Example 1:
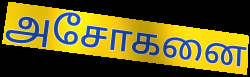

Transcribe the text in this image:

அசோகனை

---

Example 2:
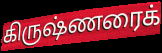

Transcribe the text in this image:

கிருஷ்ணரைக்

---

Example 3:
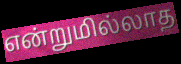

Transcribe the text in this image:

என்றுமில்லாத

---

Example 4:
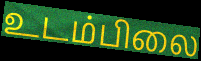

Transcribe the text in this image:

உடம்பிலை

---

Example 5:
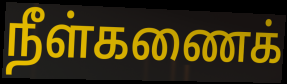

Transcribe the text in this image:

நீள்கணைக்